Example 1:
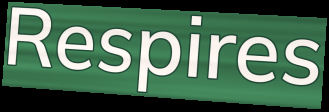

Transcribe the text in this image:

Respires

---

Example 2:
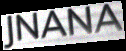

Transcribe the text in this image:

JNANA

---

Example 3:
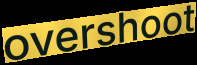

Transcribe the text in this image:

overshoot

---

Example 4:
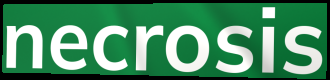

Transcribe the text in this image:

necrosis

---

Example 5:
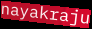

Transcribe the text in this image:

nayakraju